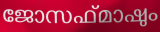
ജോസഫ്മാഷും